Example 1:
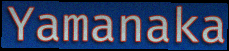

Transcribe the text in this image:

Yamanaka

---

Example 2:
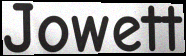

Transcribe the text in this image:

Jowett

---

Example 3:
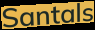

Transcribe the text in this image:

Santals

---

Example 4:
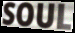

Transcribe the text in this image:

SOUL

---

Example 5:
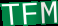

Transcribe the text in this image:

TFM